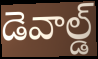
డెవాల్డ్